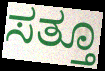
ಸತ್ತೂ